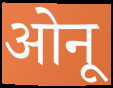
ओनू